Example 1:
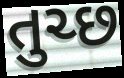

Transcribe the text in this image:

તુચ્છ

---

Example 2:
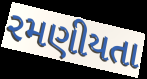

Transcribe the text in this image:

રમણીયતા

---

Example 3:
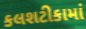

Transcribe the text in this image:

કલશટીકામાં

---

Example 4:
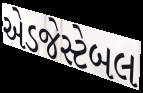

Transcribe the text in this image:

એડજેસ્ટેબલ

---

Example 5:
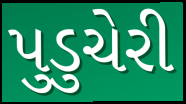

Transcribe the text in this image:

પુડુચેરી